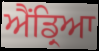
ਐਂਡ੍ਰਿਆ